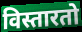
विस्तारतो